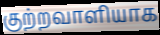
குற்றவாளியாக